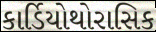
કાર્ડિયોથોરાસિક